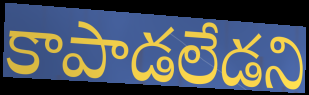
కాపాడలేడని